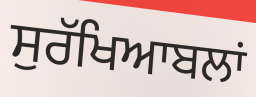
ਸੁਰੱਖਿਆਬਲਾਂ